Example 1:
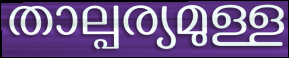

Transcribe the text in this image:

താല്പര്യമുള്ള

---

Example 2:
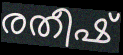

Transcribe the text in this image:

രതീഷ്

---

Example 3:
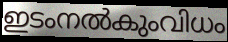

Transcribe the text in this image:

ഇടംനൽകുംവിധം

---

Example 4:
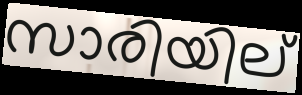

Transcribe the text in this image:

സാരിയില്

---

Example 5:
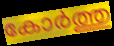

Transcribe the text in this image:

കോർത്തു